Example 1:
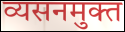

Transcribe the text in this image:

व्यसनमुक्त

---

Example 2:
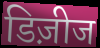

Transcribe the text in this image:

डिज़ीज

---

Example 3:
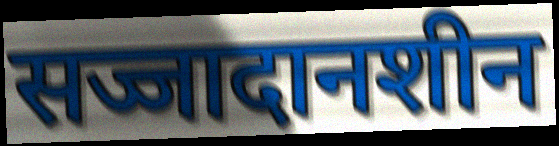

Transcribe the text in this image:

सज्जादानशीन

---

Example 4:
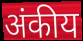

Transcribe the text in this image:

अंकीय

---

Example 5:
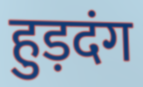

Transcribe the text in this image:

हुड़दंग